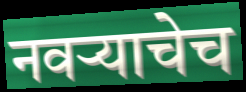
नवऱ्याचेच